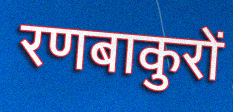
रणबाकुरों